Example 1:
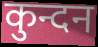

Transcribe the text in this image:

कुन्‍दन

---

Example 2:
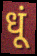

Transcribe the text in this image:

धूं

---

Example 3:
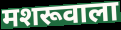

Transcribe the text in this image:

मशरूवाला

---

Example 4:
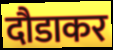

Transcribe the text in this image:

दौडाकर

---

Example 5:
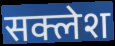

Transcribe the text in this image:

सक्लेश